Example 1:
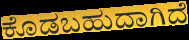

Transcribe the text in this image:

ಕೊಡಬಹುದಾಗಿದೆ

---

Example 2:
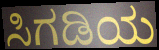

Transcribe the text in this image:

ಸಿಗಡಿಯ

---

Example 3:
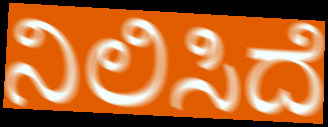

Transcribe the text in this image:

ನಿಲಿಸಿದೆ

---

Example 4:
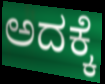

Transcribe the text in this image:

ಅದಕ್ಕೆ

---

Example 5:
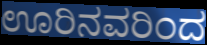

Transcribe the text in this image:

ಊರಿನವರಿಂದ